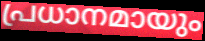
പ്രധാനമായും